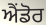
ਐਂਡੋਰ